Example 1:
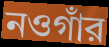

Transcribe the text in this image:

নওগাঁর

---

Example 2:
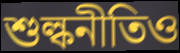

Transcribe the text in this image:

শুল্কনীতিও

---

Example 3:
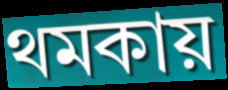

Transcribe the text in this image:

থমকায়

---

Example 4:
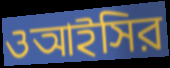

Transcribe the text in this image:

ওআইসির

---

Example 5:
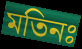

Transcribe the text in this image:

মতিনঃ